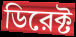
ডিরেক্ট